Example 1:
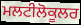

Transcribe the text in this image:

ਮਲਟੀਲੋਕੂਲਰ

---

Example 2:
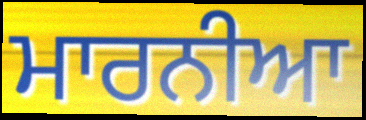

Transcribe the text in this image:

ਮਾਰਨੀਆ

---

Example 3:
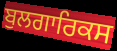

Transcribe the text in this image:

ਬੁਲਗਾਰਿਕਸ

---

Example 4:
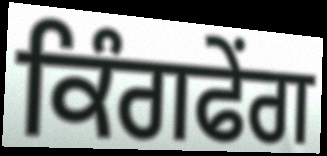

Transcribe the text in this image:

ਕਿੰਗਫੇਂਗ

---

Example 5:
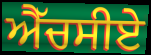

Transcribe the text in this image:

ਐੱਚਸੀਏ